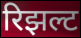
रिझल्ट